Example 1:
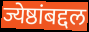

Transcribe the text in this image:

ज्येष्ठांबद्दल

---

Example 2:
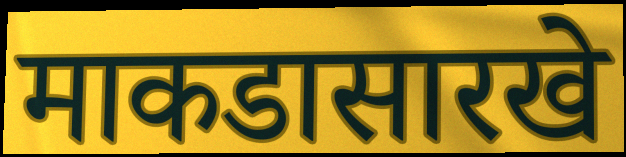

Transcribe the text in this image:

माकडासारखे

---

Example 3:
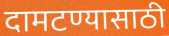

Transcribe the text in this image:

दामटण्यासाठी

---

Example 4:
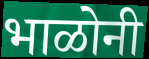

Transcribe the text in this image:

भाळोनी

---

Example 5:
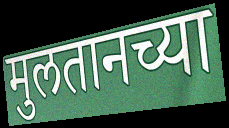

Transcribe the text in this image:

मुलतानच्या